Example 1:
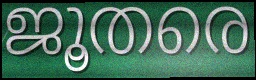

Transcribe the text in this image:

ജൂതരെ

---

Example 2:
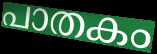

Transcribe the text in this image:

പാതകം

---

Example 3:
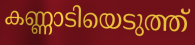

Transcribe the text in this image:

കണ്ണാടിയെടുത്ത്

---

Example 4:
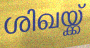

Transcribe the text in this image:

ശിഖയ്ക്ക്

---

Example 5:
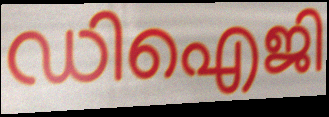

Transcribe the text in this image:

ഡിഐജി